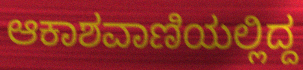
ಆಕಾಶವಾಣಿಯಲ್ಲಿದ್ದ